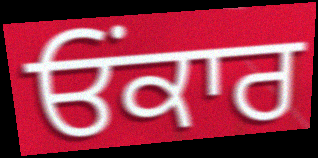
ਓਂਕਾਰ